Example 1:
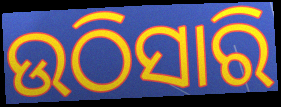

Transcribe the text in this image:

ଉଠିସାରି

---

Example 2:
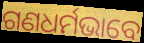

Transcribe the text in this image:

ଗଣଧର୍ମଭାବେ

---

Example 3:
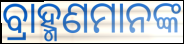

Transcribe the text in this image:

ବ୍ରାହ୍ମଣମାନଙ୍କ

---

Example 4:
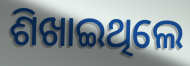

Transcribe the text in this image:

ଶିଖାଇଥିଲେ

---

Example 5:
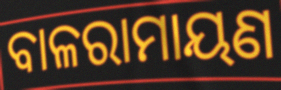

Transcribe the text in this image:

ବାଳରାମାୟଣ